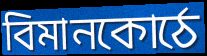
বিমানকোঠে